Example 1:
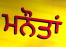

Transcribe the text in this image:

ਮਨੌਤਾਂ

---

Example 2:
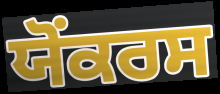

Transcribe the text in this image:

ਯੋੰਕਰਸ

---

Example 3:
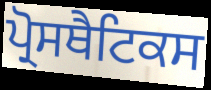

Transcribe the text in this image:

ਪ੍ਰੋਸਥੈਟਿਕਸ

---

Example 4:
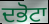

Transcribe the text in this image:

ਦਭੋਟਾ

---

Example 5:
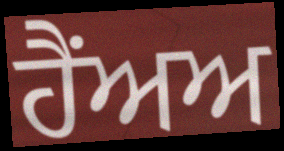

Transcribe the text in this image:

ਹੈਂਅਅ